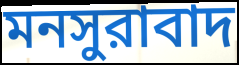
মনসুরাবাদ